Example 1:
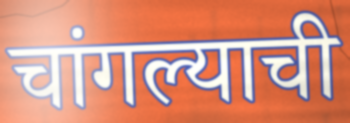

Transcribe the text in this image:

चांगल्याची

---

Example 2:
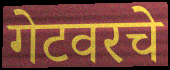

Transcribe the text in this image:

गेटवरचे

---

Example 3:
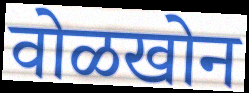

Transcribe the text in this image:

वोळखोन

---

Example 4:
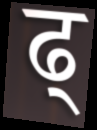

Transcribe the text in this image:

ढ्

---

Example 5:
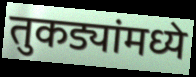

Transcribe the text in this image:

तुकड्यांमध्ये